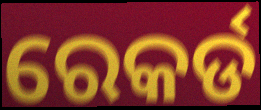
ରେକର୍ଡ